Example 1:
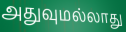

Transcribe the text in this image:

அதுவுமல்லாது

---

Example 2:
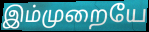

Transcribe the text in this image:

இம்முறையே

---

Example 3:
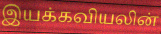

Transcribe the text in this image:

இயக்கவியலின்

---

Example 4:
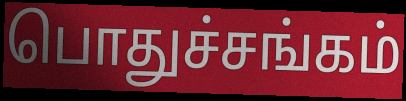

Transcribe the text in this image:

பொதுச்சங்கம்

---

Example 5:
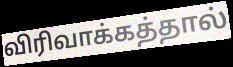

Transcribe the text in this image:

விரிவாக்கத்தால்